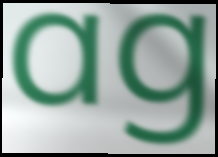
ag